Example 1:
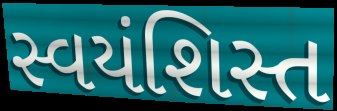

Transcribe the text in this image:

સ્વયંશિસ્ત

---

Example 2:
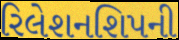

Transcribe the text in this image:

રિલેશનશિપની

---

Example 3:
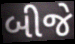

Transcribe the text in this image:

બીજે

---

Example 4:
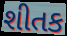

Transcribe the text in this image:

શીતક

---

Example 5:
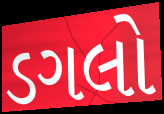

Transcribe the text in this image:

ડગલો